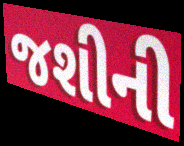
જશીની